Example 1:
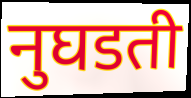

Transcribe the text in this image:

नुघडती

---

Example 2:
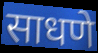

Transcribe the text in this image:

साधणे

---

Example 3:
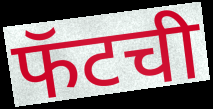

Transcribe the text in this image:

फॅटची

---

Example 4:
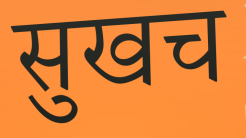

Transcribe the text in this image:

सुखच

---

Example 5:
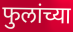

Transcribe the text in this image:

फुलांच्या